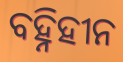
ବହ୍ନିହୀନ